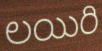
లయిరి